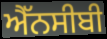
ਐੱਨਸੀਬੀ